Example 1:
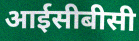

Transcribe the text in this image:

आईसीबीसी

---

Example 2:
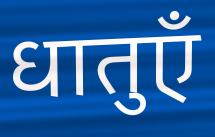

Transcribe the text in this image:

धातुएँ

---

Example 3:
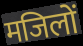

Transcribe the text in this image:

मजिलों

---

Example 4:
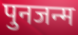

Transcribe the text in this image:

पुनजन्म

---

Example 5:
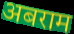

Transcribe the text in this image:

अबराम